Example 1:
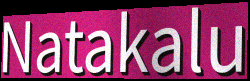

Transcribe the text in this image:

Natakalu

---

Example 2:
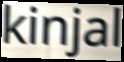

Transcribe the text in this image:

kinjal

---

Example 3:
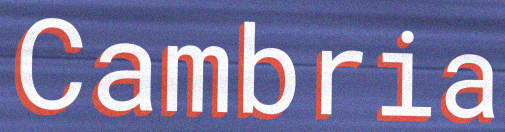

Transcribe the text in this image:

Cambria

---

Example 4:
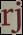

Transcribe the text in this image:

rj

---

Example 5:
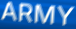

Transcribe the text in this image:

ARMY